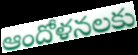
ఆందోళనలకు